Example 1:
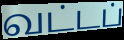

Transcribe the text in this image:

வட்டப்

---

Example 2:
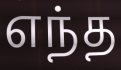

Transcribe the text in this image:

எந்த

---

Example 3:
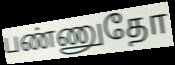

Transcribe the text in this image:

பண்ணுதோ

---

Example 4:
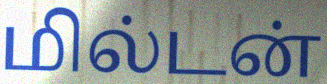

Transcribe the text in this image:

மில்டன்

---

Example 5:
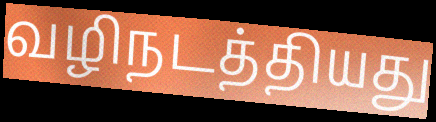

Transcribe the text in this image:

வழிநடத்தியது